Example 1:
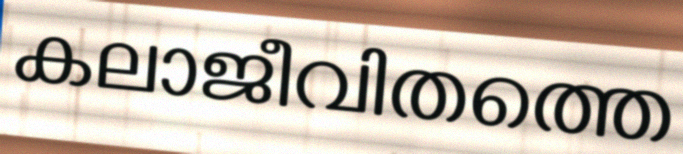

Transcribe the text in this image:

കലാജീവിതത്തെ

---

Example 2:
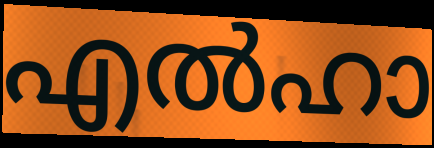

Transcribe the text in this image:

എൽഹാ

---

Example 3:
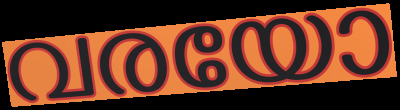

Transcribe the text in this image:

വരയോ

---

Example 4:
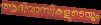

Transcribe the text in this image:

ആദിവാസികളുടെയും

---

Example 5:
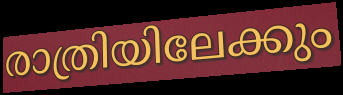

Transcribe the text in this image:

രാത്രിയിലേക്കും